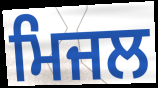
ਮਿਜਲ